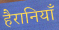
हैरानियाँ